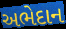
અભેદાન